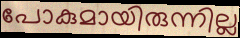
പോകുമായിരുന്നില്ല